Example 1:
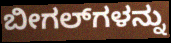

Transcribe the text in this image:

ಬೀಗಲ್‌ಗಳನ್ನು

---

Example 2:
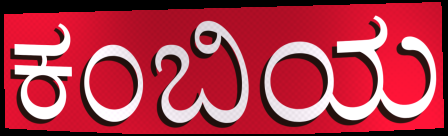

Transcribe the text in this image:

ಕಂಬಿಯ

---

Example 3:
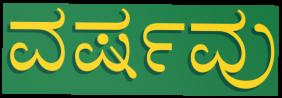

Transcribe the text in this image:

ವರ್ಷವು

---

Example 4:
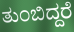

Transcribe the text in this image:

ತುಂಬಿದ್ದರೆ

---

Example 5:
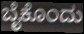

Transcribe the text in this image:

ಬೈಕೊಂದು